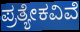
ಪ್ರತ್ಯೇಕವಿವೆ